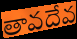
తావదేవ